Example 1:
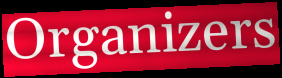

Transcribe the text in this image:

Organizers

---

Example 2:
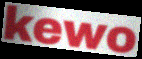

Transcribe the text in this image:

kewo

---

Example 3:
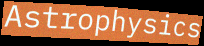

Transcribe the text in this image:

Astrophysics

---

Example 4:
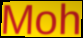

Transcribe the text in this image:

Moh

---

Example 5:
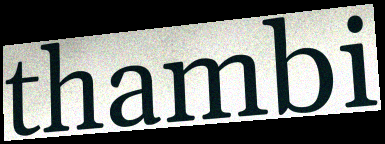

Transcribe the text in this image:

thambi